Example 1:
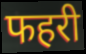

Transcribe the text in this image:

फहरी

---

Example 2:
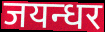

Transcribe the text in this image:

जयन्धर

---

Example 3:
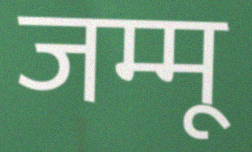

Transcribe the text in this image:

जम्‍मू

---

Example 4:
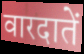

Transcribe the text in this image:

वारदातें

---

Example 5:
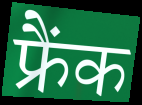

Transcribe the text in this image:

फ्रैंक